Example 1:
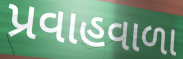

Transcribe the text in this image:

પ્રવાહવાળા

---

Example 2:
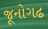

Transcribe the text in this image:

જૂનોગઢ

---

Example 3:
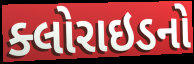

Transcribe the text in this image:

ક્લોરાઇડનો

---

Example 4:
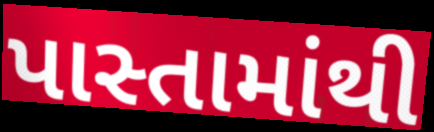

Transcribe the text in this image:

પાસ્તામાંથી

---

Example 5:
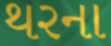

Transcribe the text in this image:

થરના